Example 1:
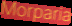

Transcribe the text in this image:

Morparia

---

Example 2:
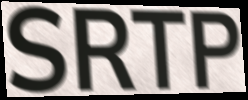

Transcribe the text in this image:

SRTP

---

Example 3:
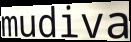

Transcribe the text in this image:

mudiva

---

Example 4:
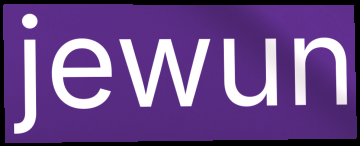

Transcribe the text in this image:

jewun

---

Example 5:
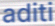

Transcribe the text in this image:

aditi